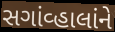
સગાંવ્હાલાંને